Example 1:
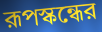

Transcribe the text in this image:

রূপস্কন্ধের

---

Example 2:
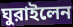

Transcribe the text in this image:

ঘুরাইলেন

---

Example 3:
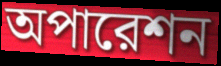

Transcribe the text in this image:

অপারেশন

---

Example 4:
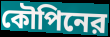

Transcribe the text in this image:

কৌপিনের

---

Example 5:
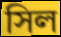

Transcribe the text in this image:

সিল